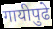
गायीपुढे